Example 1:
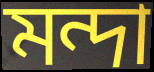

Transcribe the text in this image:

মন্দা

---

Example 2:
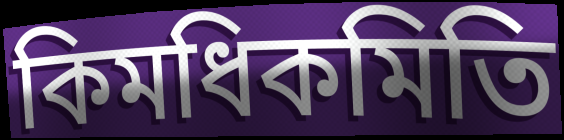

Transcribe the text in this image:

কিমধিকমিতি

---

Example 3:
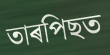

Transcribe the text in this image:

তাৰপিছত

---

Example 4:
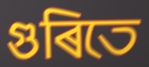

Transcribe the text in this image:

গুৰিতে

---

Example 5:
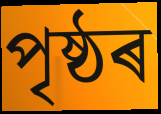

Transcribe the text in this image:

পৃষ্ঠৰ